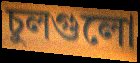
চুলগুলো